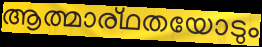
ആത്മാര്ഥതയോടും